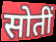
सोतीं